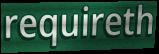
requireth